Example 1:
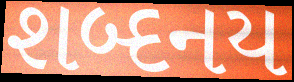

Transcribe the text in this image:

શબ્દનય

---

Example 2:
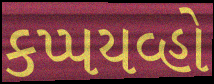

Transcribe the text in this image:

કપ્પયવ્હો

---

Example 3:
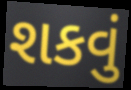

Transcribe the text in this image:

શકવું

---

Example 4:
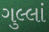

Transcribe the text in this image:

ગુલ્લાં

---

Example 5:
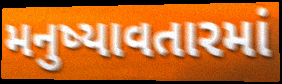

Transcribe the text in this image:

મનુષ્યાવતારમાં